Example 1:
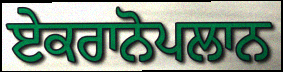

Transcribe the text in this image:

ਏਕਰਾਨੋਪਲਾਨ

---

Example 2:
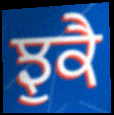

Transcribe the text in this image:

ਝੁਕੈ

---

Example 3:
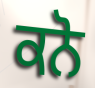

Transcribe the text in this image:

ਕਨੋ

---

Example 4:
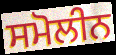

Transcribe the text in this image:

ਸਮੋਲੀਨ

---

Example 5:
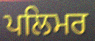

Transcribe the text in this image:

ਪਲਿਮਰ